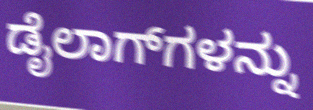
ಡೈಲಾಗ್‌ಗಳನ್ನು